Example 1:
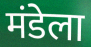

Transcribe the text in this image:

मंडेला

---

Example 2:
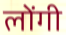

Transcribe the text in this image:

लोंगी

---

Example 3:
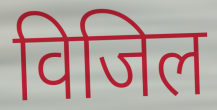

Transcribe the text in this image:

विजिल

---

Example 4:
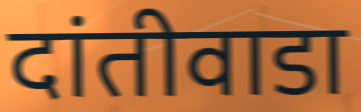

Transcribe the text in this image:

दांतीवाडा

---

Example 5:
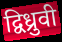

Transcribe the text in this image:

द्विध्रुवी